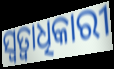
ସ୍ଵତ୍ୱାଧିକାରୀ